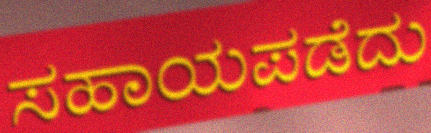
ಸಹಾಯಪಡೆದು